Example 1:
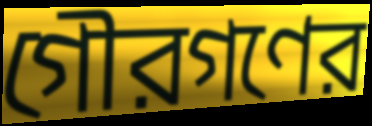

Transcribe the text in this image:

গৌরগণের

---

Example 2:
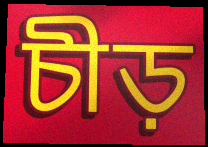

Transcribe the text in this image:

চীড়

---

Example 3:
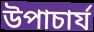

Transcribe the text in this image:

উপাচার্য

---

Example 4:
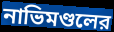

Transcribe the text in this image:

নাভিমণ্ডলের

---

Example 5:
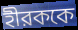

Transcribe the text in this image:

হীরককে